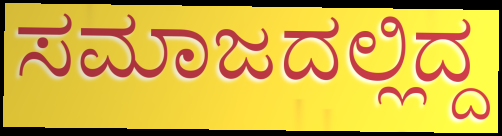
ಸಮಾಜದಲ್ಲಿದ್ದ